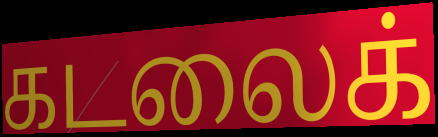
கடலைக்